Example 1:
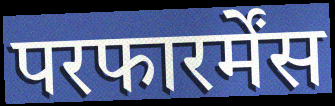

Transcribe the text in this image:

परफारर्मेंस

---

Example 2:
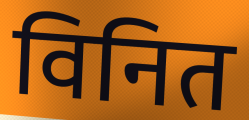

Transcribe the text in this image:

विनित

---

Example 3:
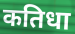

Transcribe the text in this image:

कतिधा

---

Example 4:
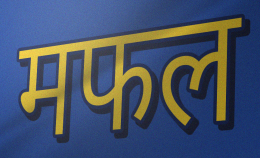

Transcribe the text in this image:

मफल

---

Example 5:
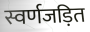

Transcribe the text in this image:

स्वर्णजड़ित